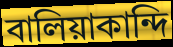
বালিয়াকান্দি